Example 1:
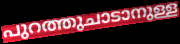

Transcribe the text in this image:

പുറത്തുചാടാനുള്ള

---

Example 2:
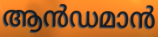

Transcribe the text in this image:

ആൻഡമാൻ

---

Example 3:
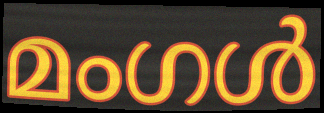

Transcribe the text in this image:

മംഗൾ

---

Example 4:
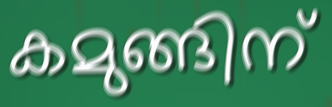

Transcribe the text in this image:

കമുങ്ങിന്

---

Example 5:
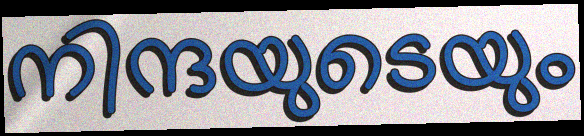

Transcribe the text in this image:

നിന്ദയുടെയും